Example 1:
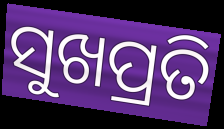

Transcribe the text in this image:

ସୁଖପ୍ରତି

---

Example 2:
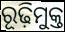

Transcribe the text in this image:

ରୂଢ଼ିମୁକ୍ତ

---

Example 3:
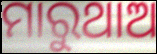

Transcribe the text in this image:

ମାରୁଥାଅ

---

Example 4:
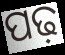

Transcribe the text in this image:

ପଢ଼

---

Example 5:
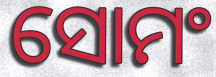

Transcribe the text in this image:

ସୋମଂ